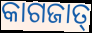
କାଗଜାତ୍